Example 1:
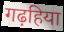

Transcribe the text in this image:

गढ़हिया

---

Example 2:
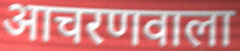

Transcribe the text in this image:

आचरणवाला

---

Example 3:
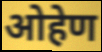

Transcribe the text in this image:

ओहेण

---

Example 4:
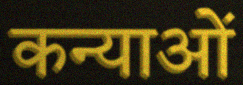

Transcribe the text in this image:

कन्‍याओं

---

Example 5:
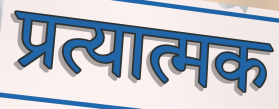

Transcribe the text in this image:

प्रत्यात्मक